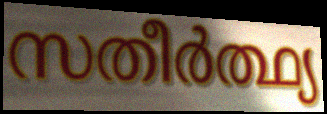
സതീർത്ഥ്യ